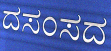
ದಸಂಸದ